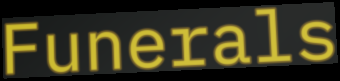
Funerals